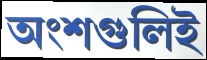
অংশগুলিই